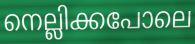
നെല്ലിക്കപോലെ